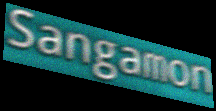
Sangamon